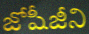
జోషీజీని